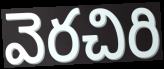
వెరచిరి